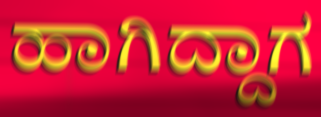
ಹಾಗಿದ್ದಾಗ